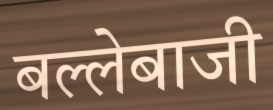
बल्लेबाजी